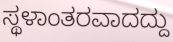
ಸ್ಥಳಾಂತರವಾದದ್ದು